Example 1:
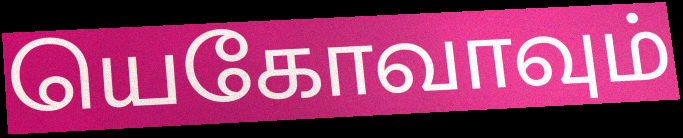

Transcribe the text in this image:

யெகோவாவும்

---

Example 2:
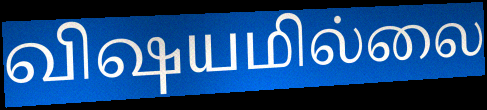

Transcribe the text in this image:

விஷயமில்லை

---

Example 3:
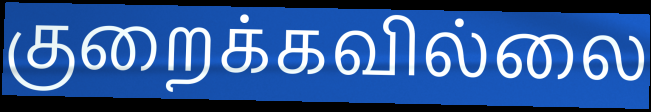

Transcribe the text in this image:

குறைக்கவில்லை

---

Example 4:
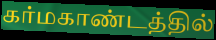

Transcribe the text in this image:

கர்மகாண்டத்தில்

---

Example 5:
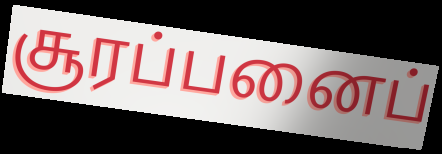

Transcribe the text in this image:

சூரப்பனைப்